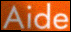
Aide